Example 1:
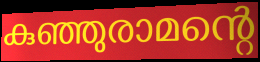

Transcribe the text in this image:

കുഞ്ഞുരാമന്റെ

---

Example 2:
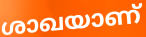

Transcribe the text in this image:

ശാഖയാണ്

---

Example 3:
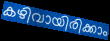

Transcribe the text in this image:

കഴിവായിരിക്കാം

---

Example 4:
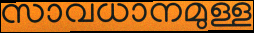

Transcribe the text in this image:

സാവധാനമുള്ള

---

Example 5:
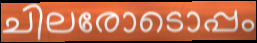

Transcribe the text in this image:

ചിലരോടൊപ്പം